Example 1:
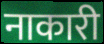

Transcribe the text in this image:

नाकारी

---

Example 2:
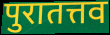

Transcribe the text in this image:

पुरातत्तव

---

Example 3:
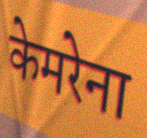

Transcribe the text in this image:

केमरेना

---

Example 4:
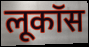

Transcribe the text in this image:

लूकॉस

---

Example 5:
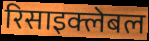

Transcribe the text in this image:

रिसाइक्लेबल